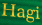
Hagi